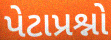
પેટાપ્રશ્નો